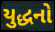
યુદ્ધનો